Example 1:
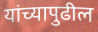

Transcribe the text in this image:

यांच्यापुढील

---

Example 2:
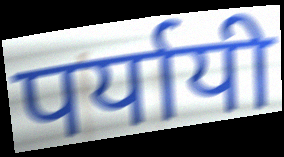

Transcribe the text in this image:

पर्यायी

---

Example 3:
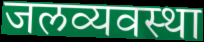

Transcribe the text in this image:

जलव्यवस्था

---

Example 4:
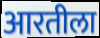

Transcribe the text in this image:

आरतीला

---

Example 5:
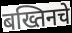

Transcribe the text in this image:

बख्तिनचे